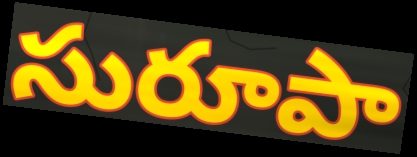
సురూపా